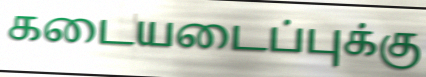
கடையடைப்புக்கு